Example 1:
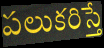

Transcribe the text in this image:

పలుకరిస్తే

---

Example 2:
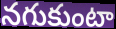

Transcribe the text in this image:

నగుకుంటా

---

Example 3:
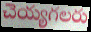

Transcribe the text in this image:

చెయ్యగలరు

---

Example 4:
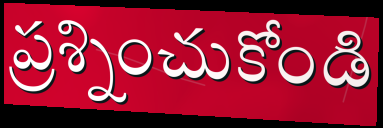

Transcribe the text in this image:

ప్రశ్నించుకోండి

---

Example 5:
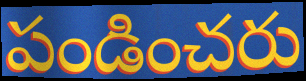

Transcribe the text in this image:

పండించరు